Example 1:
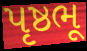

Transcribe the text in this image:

પૃષ્ઠભૂ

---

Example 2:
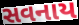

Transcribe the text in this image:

સવનાય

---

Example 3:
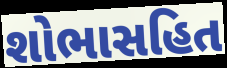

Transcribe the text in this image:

શોભાસહિત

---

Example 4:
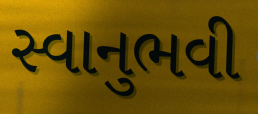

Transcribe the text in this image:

સ્વાનુભવી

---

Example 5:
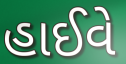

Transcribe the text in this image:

હાઈવે